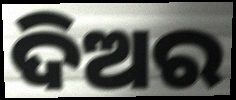
ଦିଅର